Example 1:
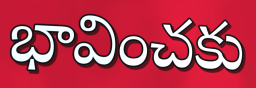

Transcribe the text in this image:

భావించకు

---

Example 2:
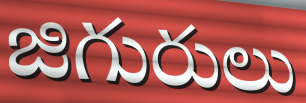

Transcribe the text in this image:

జిగురులు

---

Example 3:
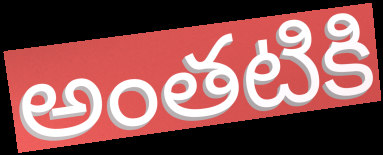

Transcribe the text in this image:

అంతటికి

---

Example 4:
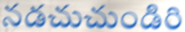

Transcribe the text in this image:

నడచుచుండిరి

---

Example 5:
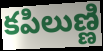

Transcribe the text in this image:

కపిలుణ్ణి